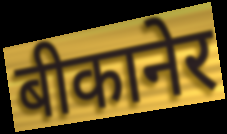
बीकानेर